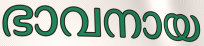
ഭാവനായ